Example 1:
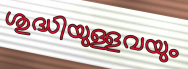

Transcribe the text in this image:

ശുദ്ധിയുള്ളവയും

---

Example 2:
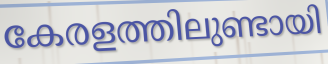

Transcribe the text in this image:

കേരളത്തിലുണ്ടായി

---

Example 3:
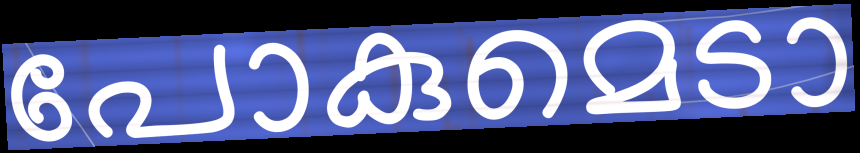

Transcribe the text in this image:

പോകുമെടാ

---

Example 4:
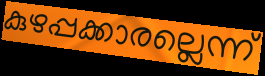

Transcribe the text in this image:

കുഴപ്പക്കാരല്ലെന്ന്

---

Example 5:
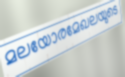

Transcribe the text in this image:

മലയോരമേഖലയുടെ